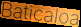
Baticaloa